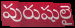
పురుషులై